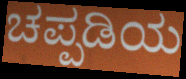
ಚಪ್ಪಡಿಯ